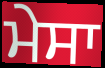
ਮੇਸਾ